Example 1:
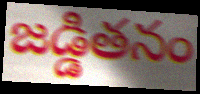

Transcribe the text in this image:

జడ్డితనం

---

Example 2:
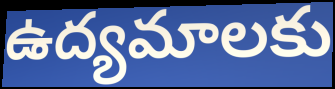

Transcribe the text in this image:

ఉద్యమాలకు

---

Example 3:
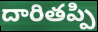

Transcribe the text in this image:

దారితప్పి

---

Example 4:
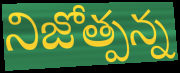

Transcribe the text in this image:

నిజోత్పన్న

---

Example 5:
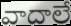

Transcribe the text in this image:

వాదాలే